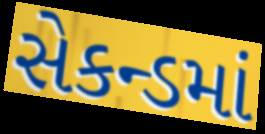
સેકન્ડમાં